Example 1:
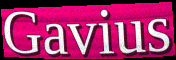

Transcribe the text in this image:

Gavius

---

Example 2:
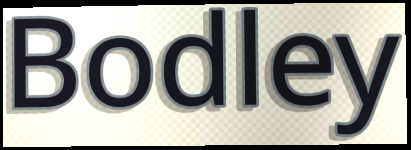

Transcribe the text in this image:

Bodley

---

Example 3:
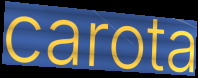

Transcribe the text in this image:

carota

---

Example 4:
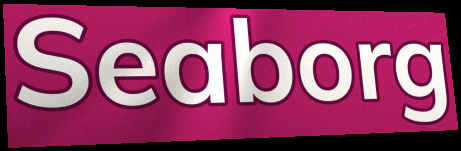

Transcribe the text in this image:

Seaborg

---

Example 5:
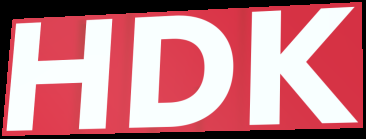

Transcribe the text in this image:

HDK